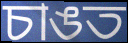
চাঙত